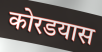
कोरडयास